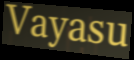
Vayasu